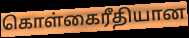
கொள்கைரீதியான